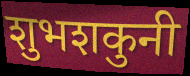
शुभशकुनी